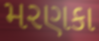
મરણકા